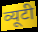
व्यूटी